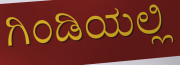
ಗಿಂಡಿಯಲ್ಲಿ